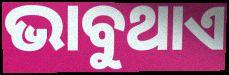
ଭାବୁଥାଏ